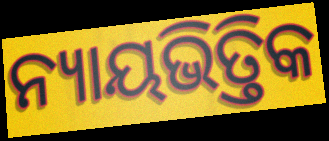
ନ୍ୟାୟଭିତ୍ତିକ